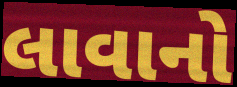
લાવાનો